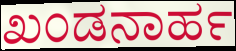
ಖಂಡನಾರ್ಹ